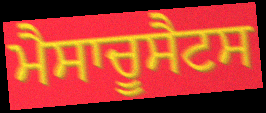
ਮੈਸਾਚੂਸੈਟਸ